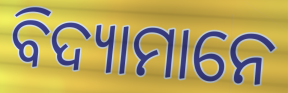
ବିଦ୍ୟାମାନେ